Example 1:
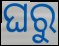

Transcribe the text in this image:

ଘରୁ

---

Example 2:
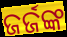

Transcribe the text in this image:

ଜର୍ଜଙ୍କ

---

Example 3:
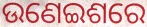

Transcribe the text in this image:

ଉଣେଇଶରେ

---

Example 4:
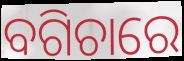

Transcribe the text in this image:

ବଗିଚାରେ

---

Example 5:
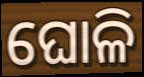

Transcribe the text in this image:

ଘୋଳି